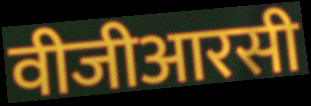
वीजीआरसी